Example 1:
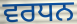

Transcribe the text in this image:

ਵਰਧਨ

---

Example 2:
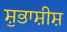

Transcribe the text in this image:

ਸ਼ੁਭਾਸ਼ੀਸ਼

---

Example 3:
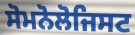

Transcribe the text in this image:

ਸੋਮਨੋਲੋਜਿਸਟ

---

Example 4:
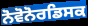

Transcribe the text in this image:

ਨੋਵੋਨੋਰਡਿਸਕ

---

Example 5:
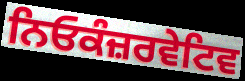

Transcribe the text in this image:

ਨਿਓਕੰਜ਼ਰਵੇਟਿਵ